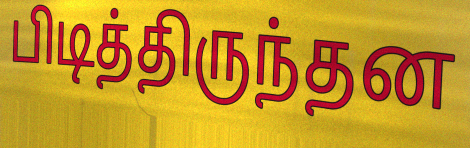
பிடித்திருந்தன